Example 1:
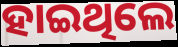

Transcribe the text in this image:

ହାଇଥିଲେ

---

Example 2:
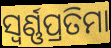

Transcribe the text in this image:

ସ୍ୱର୍ଣ୍ଣପ୍ରତିମା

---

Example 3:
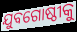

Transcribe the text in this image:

ଯୁବଗୋଷ୍ଠୀକୁ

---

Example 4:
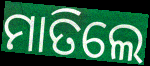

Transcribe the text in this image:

ମାତିଲେ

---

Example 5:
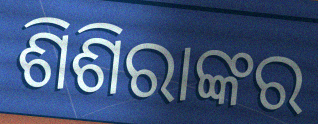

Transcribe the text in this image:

ଶିଶିରାଙ୍କର